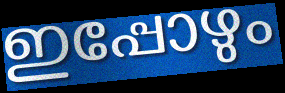
ഇപ്പോഴും